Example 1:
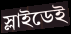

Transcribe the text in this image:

স্লাইডেই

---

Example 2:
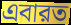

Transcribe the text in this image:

এবারত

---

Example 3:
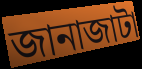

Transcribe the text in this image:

জানাজাটা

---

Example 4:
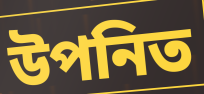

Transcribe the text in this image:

উপনিত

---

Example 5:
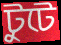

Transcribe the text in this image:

টুটে